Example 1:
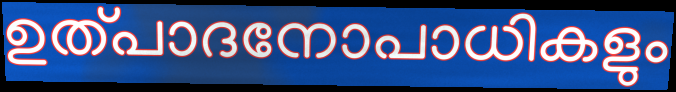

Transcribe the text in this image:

ഉത്പാദനോപാധികളും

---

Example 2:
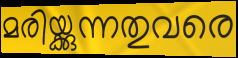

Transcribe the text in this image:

മരിയ്ക്കുന്നതുവരെ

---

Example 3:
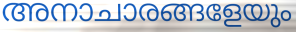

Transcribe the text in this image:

അനാചാരങ്ങളേയും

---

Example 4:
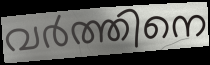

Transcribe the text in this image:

വർത്തിനെ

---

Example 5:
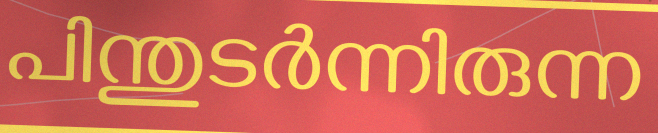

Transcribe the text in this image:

പിന്തുടർന്നിരുന്ന